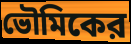
ভৌমিকের